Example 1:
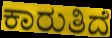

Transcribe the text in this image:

ಕಾರುತಿದೆ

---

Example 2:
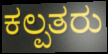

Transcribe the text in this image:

ಕಲ್ಪತರು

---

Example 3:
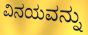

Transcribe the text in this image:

ವಿನಯವನ್ನು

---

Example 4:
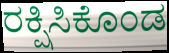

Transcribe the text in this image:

ರಕ್ಷಿಸಿಕೊಂಡ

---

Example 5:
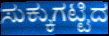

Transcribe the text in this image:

ಸುಕ್ಕುಗಟ್ಟಿದ